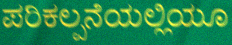
ಪರಿಕಲ್ಪನೆಯಲ್ಲಿಯೂ